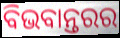
ବିଭବାନ୍ତରର